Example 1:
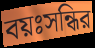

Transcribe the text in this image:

বয়ঃসন্ধির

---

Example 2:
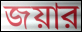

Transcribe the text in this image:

জয়ার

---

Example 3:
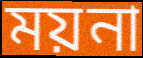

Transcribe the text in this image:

ময়না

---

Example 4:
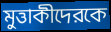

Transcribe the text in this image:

মুত্তাকীদেরকে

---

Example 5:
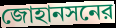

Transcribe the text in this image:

জোহানসনের